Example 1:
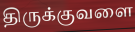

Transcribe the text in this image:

திருக்குவளை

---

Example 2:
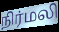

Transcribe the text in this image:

நிர்மலி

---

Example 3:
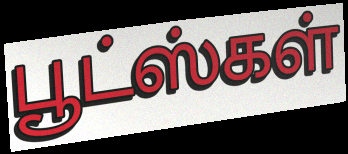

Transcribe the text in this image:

பூட்ஸ்கள்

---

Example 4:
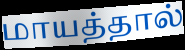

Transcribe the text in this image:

மாயத்தால்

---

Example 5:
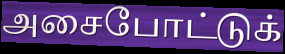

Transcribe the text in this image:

அசைபோட்டுக்